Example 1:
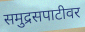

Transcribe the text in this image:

समुद्रसपाटीवर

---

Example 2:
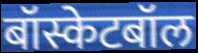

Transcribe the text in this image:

बॉस्केटबॉल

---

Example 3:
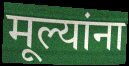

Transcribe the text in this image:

मूल्यांना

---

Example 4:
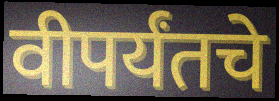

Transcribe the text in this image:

वीपर्यंतचे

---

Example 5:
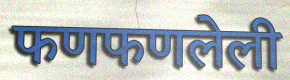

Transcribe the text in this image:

फणफणलेली